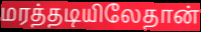
மரத்தடியிலேதான்